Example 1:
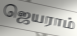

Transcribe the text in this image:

ஜெயராம்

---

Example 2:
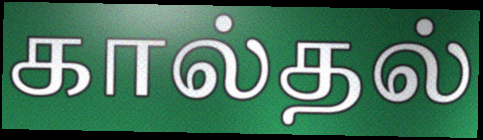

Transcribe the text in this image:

கால்தல்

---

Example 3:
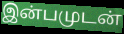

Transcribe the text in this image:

இன்பமுடன்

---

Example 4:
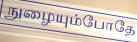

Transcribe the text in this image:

நுழையும்போதே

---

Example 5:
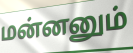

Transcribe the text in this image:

மன்னனும்